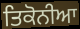
ਤਿਕੋਨੀਆ